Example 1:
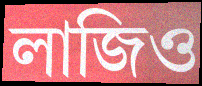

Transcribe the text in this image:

লাজিও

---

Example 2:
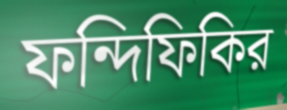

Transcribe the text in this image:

ফন্দিফিকির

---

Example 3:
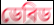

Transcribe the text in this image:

ডেবিড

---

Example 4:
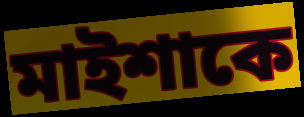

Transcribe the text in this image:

মাইশাকে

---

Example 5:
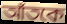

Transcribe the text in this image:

আঁতকে